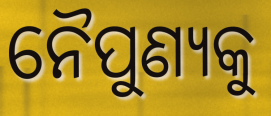
ନୈପୁଣ୍ୟକୁ